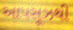
આપસૂઝથી